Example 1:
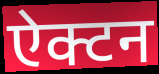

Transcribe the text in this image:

ऐक्टन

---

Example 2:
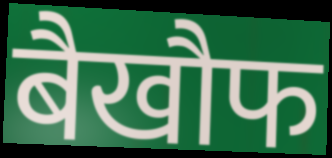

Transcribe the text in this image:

बैखौफ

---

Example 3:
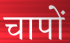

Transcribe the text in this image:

चापों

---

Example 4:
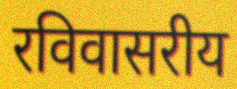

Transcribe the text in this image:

रविवासरीय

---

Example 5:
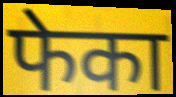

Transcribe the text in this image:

फेका